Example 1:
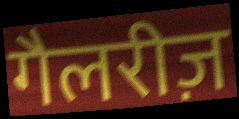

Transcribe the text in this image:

गैलरीज़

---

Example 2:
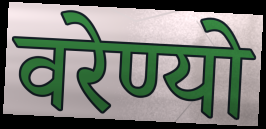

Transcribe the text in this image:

वरेण्यो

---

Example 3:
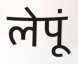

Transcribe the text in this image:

लेपूं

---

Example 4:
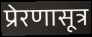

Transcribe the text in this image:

प्रेरणासूत्र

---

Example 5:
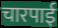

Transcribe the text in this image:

चारपाई